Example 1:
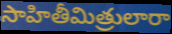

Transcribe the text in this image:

సాహితీమిత్రులారా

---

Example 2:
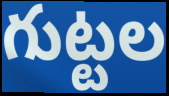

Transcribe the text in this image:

గుట్టల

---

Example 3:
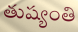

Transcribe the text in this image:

తుష్యంతి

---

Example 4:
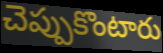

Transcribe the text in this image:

చెప్పుకొంటారు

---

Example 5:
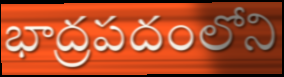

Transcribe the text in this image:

భాద్రపదంలోని